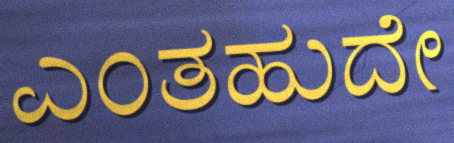
ಎಂತಹುದೇ